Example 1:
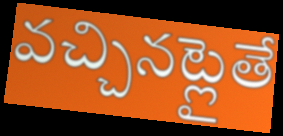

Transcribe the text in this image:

వచ్చినట్లైతే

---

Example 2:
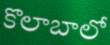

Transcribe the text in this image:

కొలాబాలో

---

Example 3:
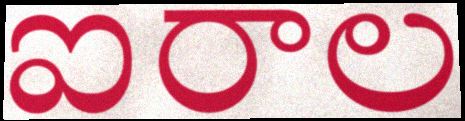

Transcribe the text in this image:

ఐరాల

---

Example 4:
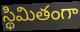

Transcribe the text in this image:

స్థిమితంగా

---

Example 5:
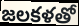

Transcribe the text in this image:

జలకళతో